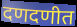
दणदणीत